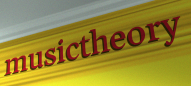
musictheory